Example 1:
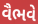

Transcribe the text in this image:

વૈભવે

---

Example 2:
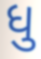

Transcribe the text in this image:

ધુ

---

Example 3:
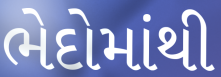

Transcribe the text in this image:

ભેદોમાંથી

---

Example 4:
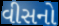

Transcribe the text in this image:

વીસનો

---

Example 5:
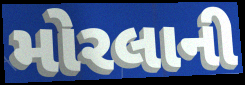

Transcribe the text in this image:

મોરલાની